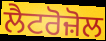
ਲੈਟਰੋਜ਼ੋਲ